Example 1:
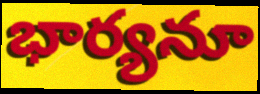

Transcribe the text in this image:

భార్యనూ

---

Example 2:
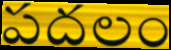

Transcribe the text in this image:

పదలం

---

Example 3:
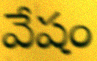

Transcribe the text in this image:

వేషం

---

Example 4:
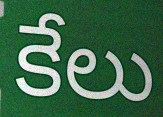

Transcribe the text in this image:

కేలు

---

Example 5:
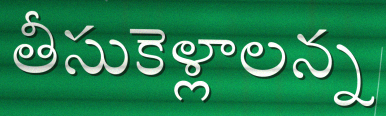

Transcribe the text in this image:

తీసుకెళ్లాలన్న